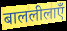
बाललीलाएँ